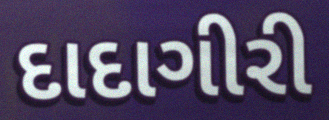
દાદાગીરી